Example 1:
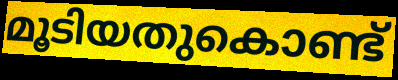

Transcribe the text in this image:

മൂടിയതുകൊണ്ട്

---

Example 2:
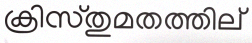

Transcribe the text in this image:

ക്രിസ്തുമതത്തില്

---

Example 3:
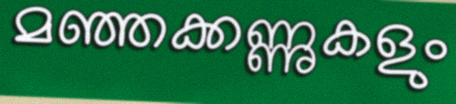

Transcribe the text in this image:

മഞ്ഞക്കണ്ണുകളും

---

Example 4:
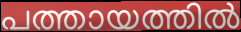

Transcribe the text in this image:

പത്തായത്തിൽ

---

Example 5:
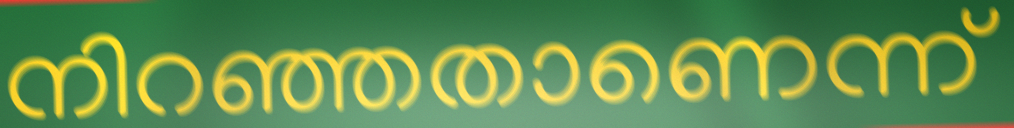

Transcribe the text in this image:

നിറഞ്ഞതാണെന്ന്